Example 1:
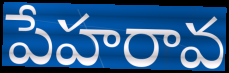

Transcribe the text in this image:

పేహరావ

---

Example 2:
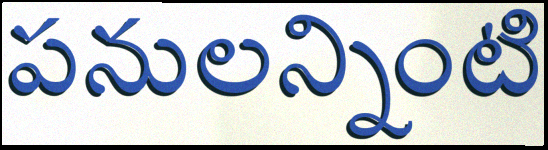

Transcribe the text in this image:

పనులన్నింటి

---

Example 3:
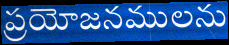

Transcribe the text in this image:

ప్రయోజనములను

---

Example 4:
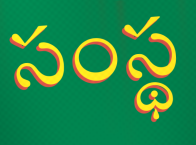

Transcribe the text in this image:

సంస్థ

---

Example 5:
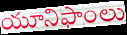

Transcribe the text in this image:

యూనిఫాంలు